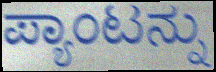
ಪ್ಯಾಂಟನ್ನು